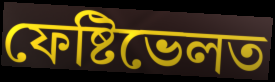
ফেষ্টিভেলত